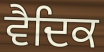
ਵੈਦਿਕ